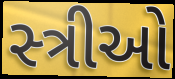
સ્‍ત્રીઓ